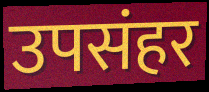
उपसंहर